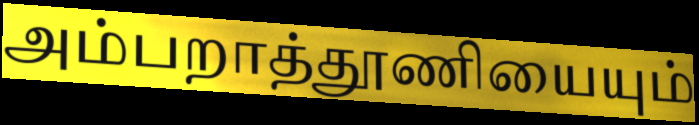
அம்பறாத்தூணியையும்